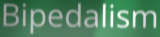
Bipedalism